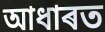
আধাৰত